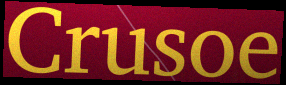
Crusoe